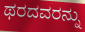
ಥರದವರನ್ನು